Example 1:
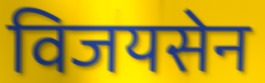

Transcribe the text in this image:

विजयसेन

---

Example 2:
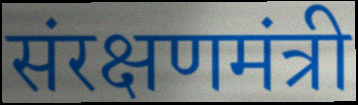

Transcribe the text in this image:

संरक्षणमंत्री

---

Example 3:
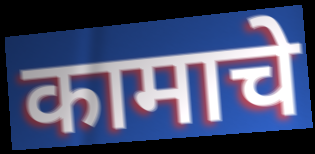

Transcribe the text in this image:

कामाचे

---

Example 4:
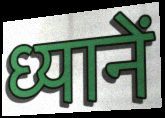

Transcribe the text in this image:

ध्यानें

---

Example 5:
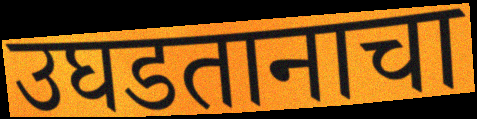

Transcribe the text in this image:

उघडतानाचा